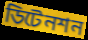
ডিটেনশন